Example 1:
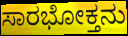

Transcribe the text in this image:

ಸಾರಭೋಕ್ತನು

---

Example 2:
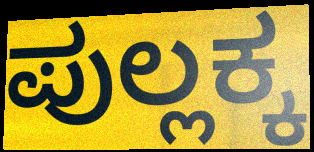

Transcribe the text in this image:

ಪುಲ್ಲಕ್ಕ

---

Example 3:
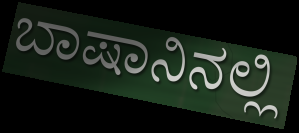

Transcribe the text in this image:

ಬಾಷಾನಿನಲ್ಲಿ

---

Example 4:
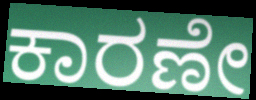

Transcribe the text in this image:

ಕಾರಣೇ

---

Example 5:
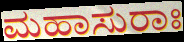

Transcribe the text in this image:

ಮಹಾಸುರಾಃ